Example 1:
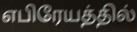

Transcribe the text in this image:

எபிரேயத்தில்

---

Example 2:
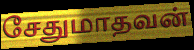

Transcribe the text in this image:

சேதுமாதவன்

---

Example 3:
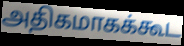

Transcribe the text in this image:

அதிகமாகக்கூட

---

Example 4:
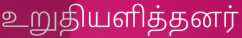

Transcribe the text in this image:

உறுதியளித்தனர்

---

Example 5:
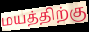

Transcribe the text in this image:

மயத்திற்கு